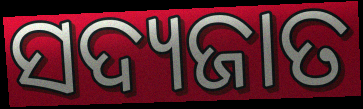
ସଦ୍ୟଜାତ